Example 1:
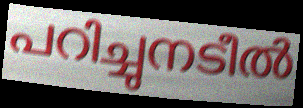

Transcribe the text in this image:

പറിച്ചുനടീൽ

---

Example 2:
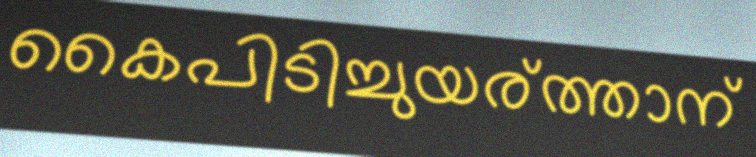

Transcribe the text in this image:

കൈപിടിച്ചുയര്ത്താന്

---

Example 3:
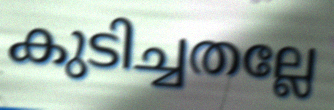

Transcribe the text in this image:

കുടിച്ചതല്ലേ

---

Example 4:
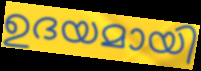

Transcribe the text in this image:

ഉദയമായി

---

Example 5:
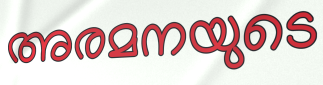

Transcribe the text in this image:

അരമനയുടെ